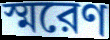
স্মরেণ